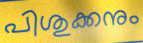
പിശുക്കനും